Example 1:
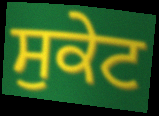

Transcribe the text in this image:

ਸੁਕੇਟ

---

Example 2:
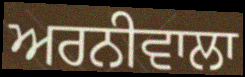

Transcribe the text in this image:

ਅਰਨੀਵਾਲਾ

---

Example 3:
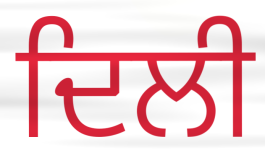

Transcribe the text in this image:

ਦਿਲੀ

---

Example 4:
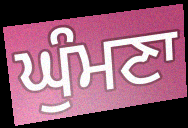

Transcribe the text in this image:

ਘੁੰਮਣਾ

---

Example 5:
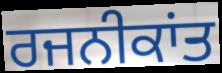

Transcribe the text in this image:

ਰਜਨੀਕਾਂਤ